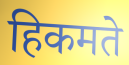
हिकमते